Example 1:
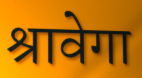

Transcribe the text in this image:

श्रावेगा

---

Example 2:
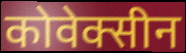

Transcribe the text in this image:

कोवेक्सीन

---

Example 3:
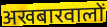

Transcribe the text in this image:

अखबारवालों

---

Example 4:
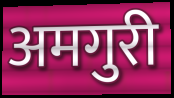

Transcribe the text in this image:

अमगुरी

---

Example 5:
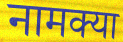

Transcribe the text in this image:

नामक्या